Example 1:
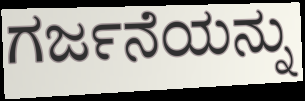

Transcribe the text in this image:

ಗರ್ಜನೆಯನ್ನು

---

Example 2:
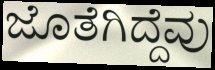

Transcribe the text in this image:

ಜೊತೆಗಿದ್ದೆವು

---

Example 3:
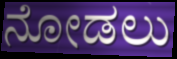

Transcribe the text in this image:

ನೋಡಲು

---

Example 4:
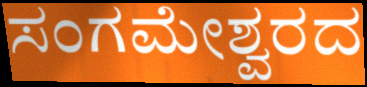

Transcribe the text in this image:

ಸಂಗಮೇಶ್ವರದ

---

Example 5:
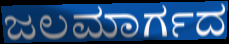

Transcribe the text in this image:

ಜಲಮಾರ್ಗದ